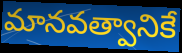
మానవత్వానికే